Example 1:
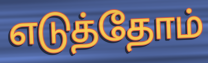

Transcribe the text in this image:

எடுத்தோம்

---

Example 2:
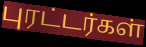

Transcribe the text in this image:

புரட்டர்கள்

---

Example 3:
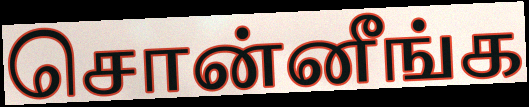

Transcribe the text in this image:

சொன்னீங்க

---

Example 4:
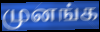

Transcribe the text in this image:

முனங்க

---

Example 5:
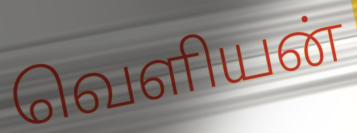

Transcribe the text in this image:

வெளியன்